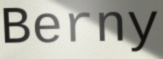
Berny